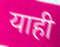
याही